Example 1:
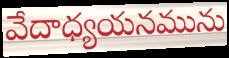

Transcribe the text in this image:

వేదాధ్యయనమును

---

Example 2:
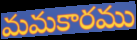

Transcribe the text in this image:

మమకారము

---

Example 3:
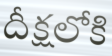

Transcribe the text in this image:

దీక్షలోకి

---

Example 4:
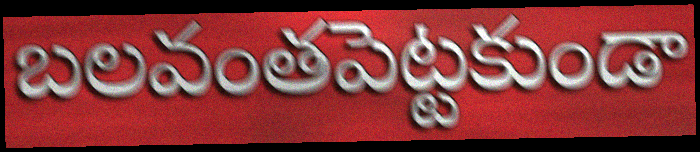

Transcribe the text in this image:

బలవంతపెట్టకుండా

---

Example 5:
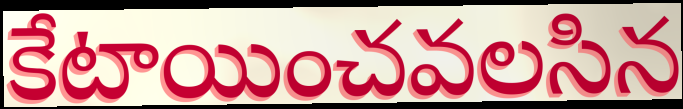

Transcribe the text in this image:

కేటాయించవలసిన